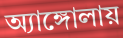
অ্যাঙ্গোলায়